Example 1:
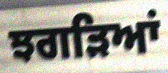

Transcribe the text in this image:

ਝਗੜਿਆਂ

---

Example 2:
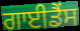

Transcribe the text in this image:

ਗਾਈਡੈਂਸ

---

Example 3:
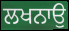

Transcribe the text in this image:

ਲਖਨਾਉ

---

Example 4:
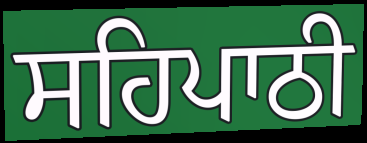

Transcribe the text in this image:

ਸਹਿਪਾਠੀ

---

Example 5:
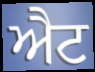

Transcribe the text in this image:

ਐਟ